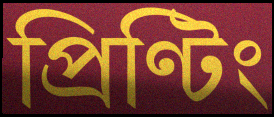
প্ৰিণ্টিং